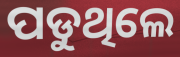
ପଡୁଥିଲେ